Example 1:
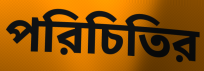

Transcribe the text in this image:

পরিচিতির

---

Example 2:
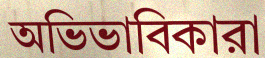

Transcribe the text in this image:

অভিভাবিকারা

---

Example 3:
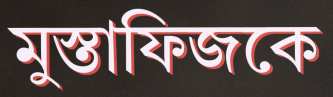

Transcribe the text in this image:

মুস্তাফিজকে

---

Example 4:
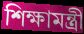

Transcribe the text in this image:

শিক্ষামন্ত্রী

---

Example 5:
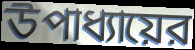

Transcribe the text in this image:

উপাধ্যায়ের